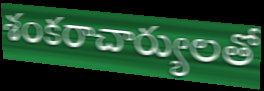
శంకరాచార్యులతో